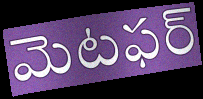
మెటఫర్